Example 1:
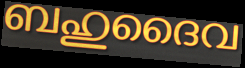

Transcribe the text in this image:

ബഹുദൈവ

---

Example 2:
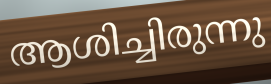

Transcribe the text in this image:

ആശിച്ചിരുന്നു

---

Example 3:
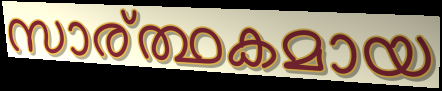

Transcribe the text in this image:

സാര്ത്ഥകമായ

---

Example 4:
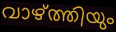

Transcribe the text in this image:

വാഴ്ത്തിയും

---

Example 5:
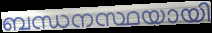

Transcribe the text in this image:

ബന്ധനസ്ഥയായി